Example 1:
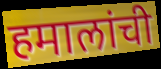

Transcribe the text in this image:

हमालांची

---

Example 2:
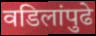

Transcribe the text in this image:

वडिलांपुढे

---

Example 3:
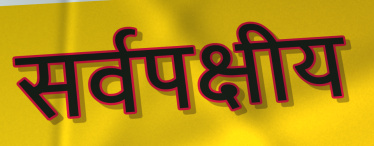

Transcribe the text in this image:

सर्वपक्षीय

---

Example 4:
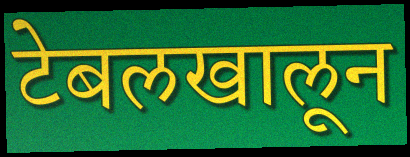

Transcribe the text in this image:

टेबलखालून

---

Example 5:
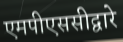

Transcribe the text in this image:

एमपीएससीद्वारे